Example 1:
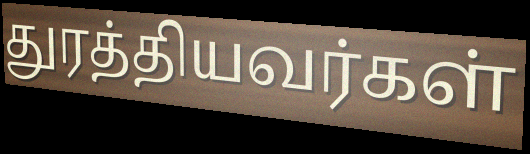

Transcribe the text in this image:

துரத்தியவர்கள்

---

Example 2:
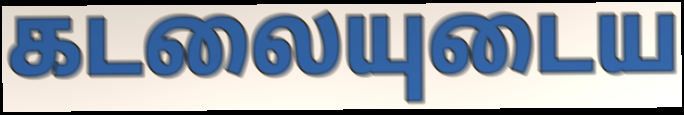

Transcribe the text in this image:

கடலையுடைய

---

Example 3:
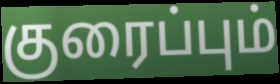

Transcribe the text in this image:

குரைப்பும்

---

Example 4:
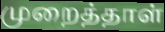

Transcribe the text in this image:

முறைத்தாள்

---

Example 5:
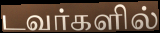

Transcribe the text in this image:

டவர்களில்